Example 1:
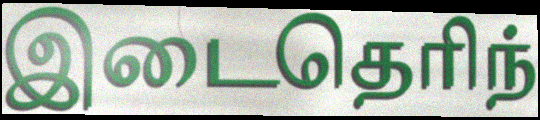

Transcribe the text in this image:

இடைதெரிந்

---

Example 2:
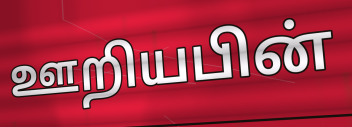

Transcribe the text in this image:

ஊறியபின்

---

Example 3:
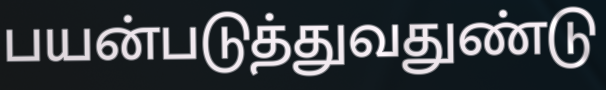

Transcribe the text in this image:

பயன்படுத்துவதுண்டு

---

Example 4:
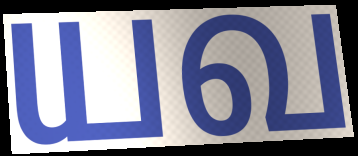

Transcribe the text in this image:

யவ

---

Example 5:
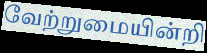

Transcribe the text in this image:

வேற்றுமையின்றி